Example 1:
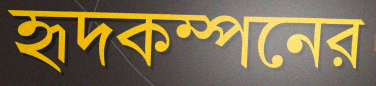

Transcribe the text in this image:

হৃদকম্পনের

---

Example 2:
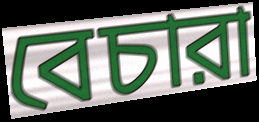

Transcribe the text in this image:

বেচারা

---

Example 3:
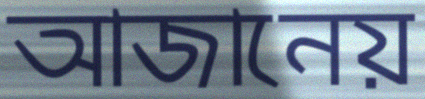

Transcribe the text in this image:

আজানেয়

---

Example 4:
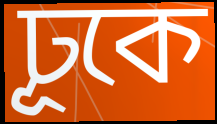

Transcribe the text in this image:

ঢূকে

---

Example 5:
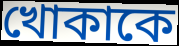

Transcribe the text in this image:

খোকাকে